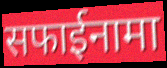
सफाईनामा